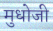
मुधोजी